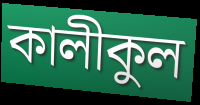
কালীকুল